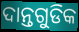
ଦାନ୍ତଗୁଡିକ